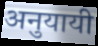
अनुयायी